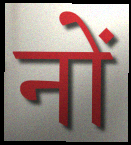
नों